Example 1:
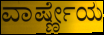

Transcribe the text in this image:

ವಾರ್ಷ್ಣೇಯ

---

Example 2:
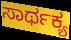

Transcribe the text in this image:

ಸಾರ್ಥಕ್ಯ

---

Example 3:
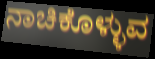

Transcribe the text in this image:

ನಾಚಿಕೊಳ್ಳುವ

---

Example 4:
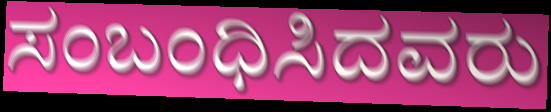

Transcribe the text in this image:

ಸಂಬಂಧಿಸಿದವರು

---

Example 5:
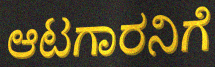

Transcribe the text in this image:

ಆಟಗಾರನಿಗೆ